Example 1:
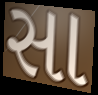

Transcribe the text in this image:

સા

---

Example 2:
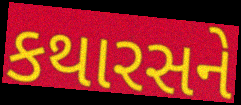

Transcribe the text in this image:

કથારસને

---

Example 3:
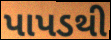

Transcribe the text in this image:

પાપડથી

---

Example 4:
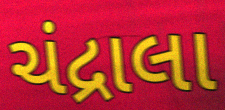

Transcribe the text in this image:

ચંદ્રાલા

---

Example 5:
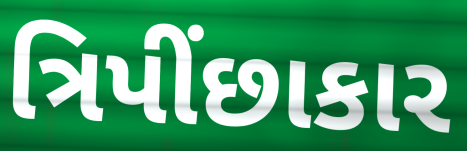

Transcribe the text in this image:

ત્રિપીંછાકાર